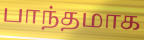
பாந்தமாக